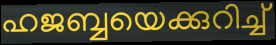
ഹജബ്ബയെക്കുറിച്ച്